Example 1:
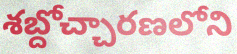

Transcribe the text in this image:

శబ్దోచ్చారణలోని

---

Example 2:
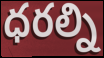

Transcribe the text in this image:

ధరల్ని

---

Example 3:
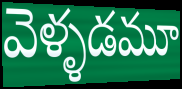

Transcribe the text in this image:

వెళ్ళడమూ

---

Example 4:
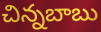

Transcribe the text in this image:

చిన్నబాబు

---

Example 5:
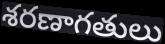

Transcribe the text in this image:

శరణాగతులు